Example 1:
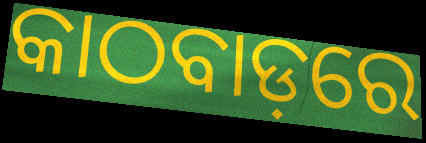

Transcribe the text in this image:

କାଠବାଡ଼ରେ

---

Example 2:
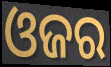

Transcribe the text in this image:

ଓଜର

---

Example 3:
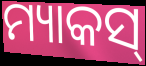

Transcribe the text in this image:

ମ୍ୟାକସ୍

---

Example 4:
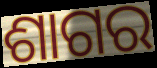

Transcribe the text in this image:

ଶାଗର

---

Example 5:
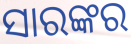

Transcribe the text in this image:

ସାରଙ୍କର